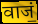
वाजं॒